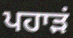
ਪਹਾੜਂ